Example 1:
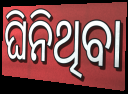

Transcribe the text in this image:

ଘିନିଥିବା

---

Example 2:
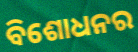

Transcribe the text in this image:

ବିଶୋଧନର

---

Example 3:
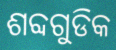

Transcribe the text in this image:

ଶବ୍ଦଗୁଡିକ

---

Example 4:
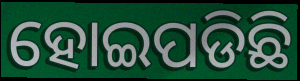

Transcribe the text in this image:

ହୋଇପଡିଛି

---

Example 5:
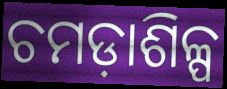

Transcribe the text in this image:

ଚମଡ଼ାଶିଳ୍ପ